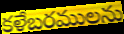
కళేబరములను